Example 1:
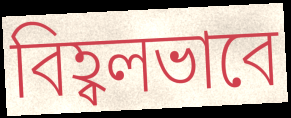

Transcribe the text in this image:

বিহ্বলভাবে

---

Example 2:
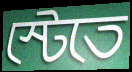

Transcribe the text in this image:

স্টেতে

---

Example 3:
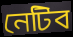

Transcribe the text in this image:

নেটিব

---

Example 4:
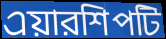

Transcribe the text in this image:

এয়ারশিপটি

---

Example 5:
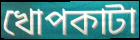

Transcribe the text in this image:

খোপকাটা